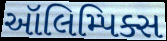
ઑલિમ્પિક્સ